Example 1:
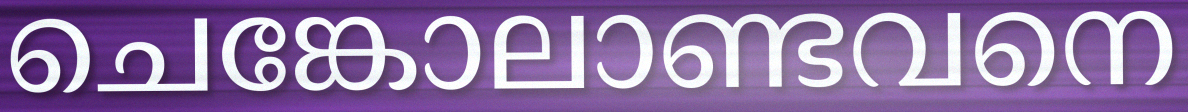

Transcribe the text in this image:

ചെങ്കോലാണ്ടവനെ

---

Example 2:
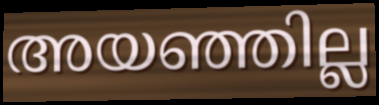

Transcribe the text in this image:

അയഞ്ഞില്ല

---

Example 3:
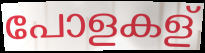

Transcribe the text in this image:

പോളകള്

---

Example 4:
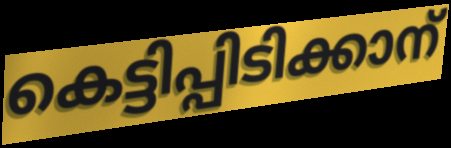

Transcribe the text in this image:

കെട്ടിപ്പിടിക്കാന്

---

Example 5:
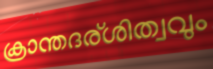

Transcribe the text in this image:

ക്രാന്തദര്ശിത്വവും